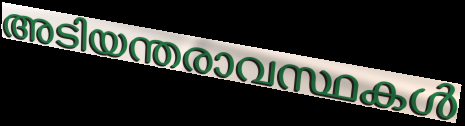
അടിയന്തരാവസ്ഥകൾ